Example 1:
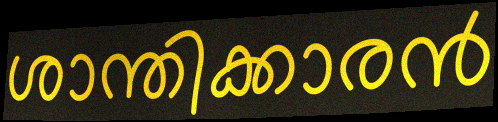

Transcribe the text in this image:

ശാന്തിക്കാരൻ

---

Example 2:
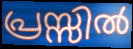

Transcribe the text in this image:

പ്രസ്സിൽ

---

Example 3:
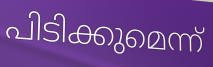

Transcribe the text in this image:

പിടിക്കുമെന്ന്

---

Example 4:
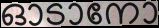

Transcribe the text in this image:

ഓടാനോ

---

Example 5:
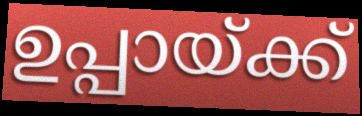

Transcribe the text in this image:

ഉപ്പായ്ക്ക്